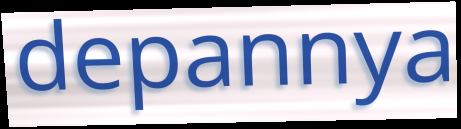
depannya